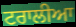
ਟਰਾਲੀਆ